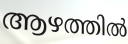
ആഴത്തിൽ